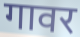
गावर